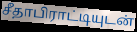
சீதாபிராட்டியுடன்